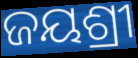
ଜୟଶ୍ରୀ